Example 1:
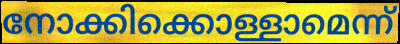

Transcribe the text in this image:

നോക്കിക്കൊള്ളാമെന്ന്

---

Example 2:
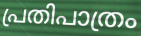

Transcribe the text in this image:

പ്രതിപാത്രം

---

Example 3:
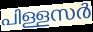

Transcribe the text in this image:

പിള്ളസർ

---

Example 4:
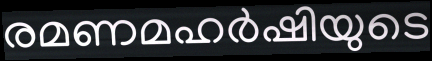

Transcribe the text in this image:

രമണമഹർഷിയുടെ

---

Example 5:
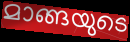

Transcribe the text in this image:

മാങ്ങയുടെ